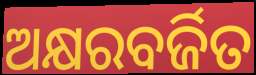
ଅକ୍ଷରବର୍ଜିତ